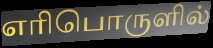
எரிபொருளில்